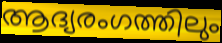
ആദ്യരംഗത്തിലും